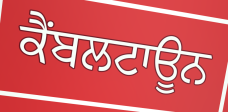
ਕੈਂਬਲਟਾਊਨ